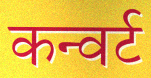
कन्वर्ट